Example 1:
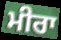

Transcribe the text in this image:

ਮੀਰਾ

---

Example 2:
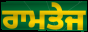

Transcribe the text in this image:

ਰਾਮਤੇਜ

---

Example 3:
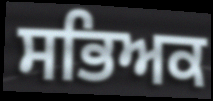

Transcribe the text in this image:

ਸਭਿਅਕ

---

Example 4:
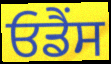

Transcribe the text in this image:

ਓਡੈਂਸ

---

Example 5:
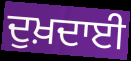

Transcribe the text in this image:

ਦੁਖ਼ਦਾਈ